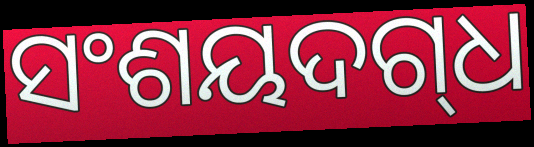
ସଂଶୟଦଗ୍‌ଧ